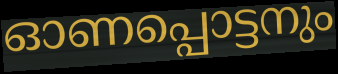
ഓണപ്പൊട്ടനും